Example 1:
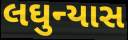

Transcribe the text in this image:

લઘુન્યાસ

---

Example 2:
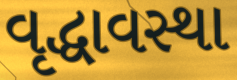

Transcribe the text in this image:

વૃદ્ધાવસ્થા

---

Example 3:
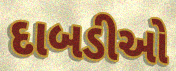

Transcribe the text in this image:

દાબડીઓ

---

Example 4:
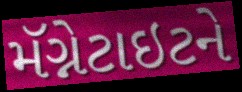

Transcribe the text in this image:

મૅગ્નેટાઇટને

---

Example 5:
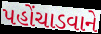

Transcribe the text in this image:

પહોંચાડવાને